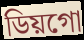
ডিয়গো